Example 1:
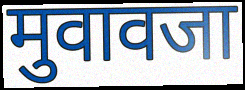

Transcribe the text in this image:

मुवावजा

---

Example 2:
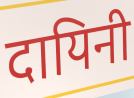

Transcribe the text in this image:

दायिनी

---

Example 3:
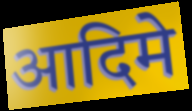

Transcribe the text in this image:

आदिमे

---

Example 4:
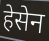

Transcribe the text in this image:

हेसेन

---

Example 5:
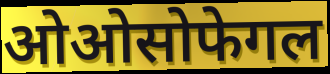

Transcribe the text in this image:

ओओसोफेगल